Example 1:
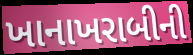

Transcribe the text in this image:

ખાનાખરાબીની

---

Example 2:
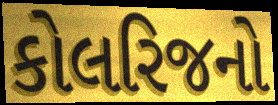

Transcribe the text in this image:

કોલરિજનો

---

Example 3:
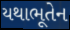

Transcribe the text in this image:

યથાભૂતેન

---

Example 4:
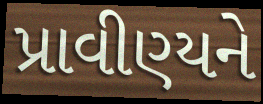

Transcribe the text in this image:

પ્રાવીણ્યને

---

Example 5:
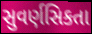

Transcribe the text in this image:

સુવર્ણસિકતા